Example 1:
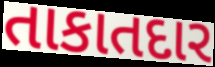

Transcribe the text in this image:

તાકાતદાર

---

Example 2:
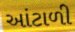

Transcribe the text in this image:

આંટાળી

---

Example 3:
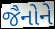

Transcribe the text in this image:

જૈનોને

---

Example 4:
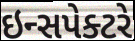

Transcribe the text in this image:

ઇન્સપેક્ટરે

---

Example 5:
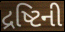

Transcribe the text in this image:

દ્રષ્ટિની